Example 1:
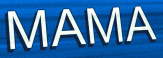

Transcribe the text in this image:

MAMA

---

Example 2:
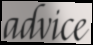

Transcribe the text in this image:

advice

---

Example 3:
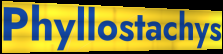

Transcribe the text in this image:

Phyllostachys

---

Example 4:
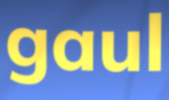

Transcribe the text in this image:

gaul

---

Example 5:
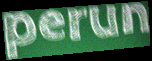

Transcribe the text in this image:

perun